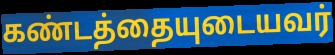
கண்டத்தையுடையவர்